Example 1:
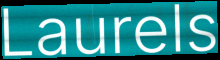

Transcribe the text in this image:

Laurels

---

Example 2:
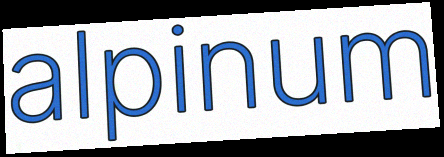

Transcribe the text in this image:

alpinum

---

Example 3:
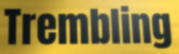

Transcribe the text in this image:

Trembling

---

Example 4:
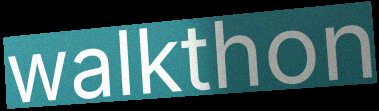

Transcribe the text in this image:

walkthon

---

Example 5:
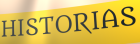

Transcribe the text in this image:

HISTORIAS